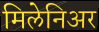
मिलेनिअर